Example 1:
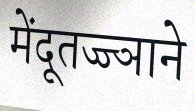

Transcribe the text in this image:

मेंदूतज्ज्ञाने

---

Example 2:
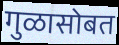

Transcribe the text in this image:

गुळासोबत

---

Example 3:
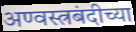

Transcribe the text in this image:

अण्वस्त्रबंदीच्या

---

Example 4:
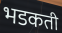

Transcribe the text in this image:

भडकती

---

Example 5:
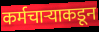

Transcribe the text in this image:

कर्मचाऱ्याकडून